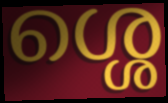
ശ്ശെ